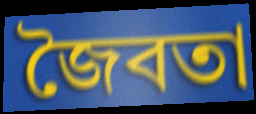
জৈবতা